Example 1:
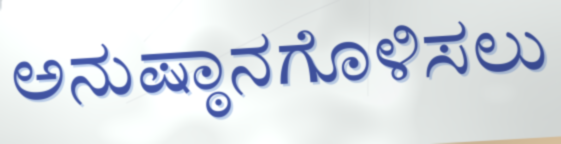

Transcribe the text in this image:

ಅನುಷ್ಠಾನಗೊಳಿಸಲು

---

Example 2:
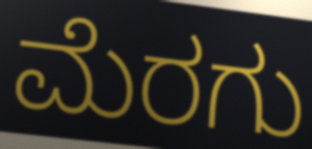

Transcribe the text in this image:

ಮೆರಗು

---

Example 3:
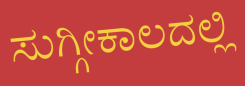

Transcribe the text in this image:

ಸುಗ್ಗೀಕಾಲದಲ್ಲಿ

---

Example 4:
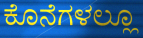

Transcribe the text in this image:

ಕೊನೆಗಳಲ್ಲೂ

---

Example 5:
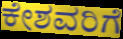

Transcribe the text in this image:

ಕೇಶವರಿಗೆ